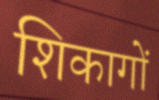
शिकागों